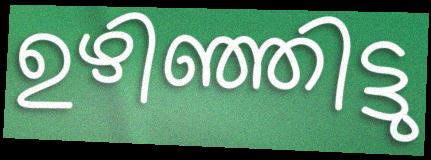
ഉഴിഞ്ഞിട്ടു